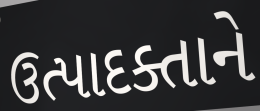
ઉત્પાદક્તાને